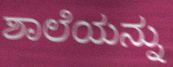
ಶಾಲೆಯನ್ನು